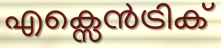
എക്സെൻട്രിക്